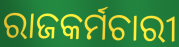
ରାଜକର୍ମଚାରୀ